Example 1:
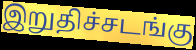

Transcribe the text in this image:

இறுதிச்சடங்கு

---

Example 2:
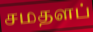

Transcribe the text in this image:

சமதளப்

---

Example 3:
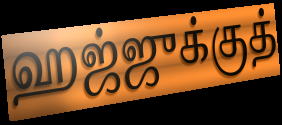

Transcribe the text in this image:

ஹஜ்ஜுக்குத்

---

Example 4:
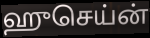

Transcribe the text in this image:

ஹுசெய்ன்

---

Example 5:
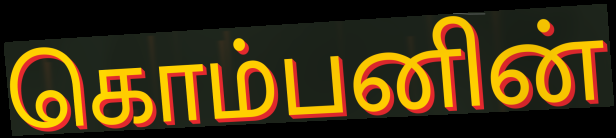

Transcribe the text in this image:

கொம்பனின்